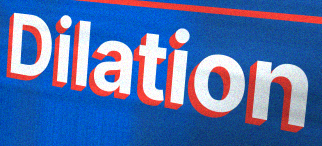
Dilation